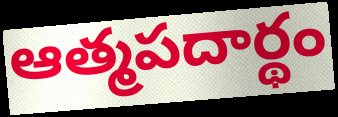
ఆత్మపదార్థం